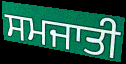
ਸਮਜਾਤੀ